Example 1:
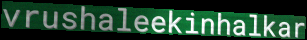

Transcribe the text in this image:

vrushaleekinhalkar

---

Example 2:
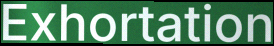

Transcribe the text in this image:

Exhortation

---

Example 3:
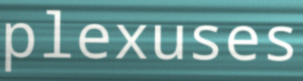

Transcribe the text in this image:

plexuses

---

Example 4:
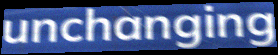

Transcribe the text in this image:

unchanging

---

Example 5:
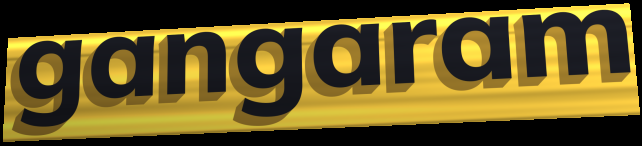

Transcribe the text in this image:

gangaram